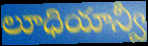
లూధియాన్వీ